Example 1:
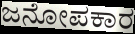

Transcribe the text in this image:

ಜನೋಪಕಾರ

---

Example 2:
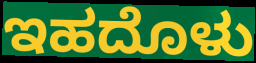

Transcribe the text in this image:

ಇಹದೊಳು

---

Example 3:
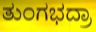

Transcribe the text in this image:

ತುಂಗಭದ್ರಾ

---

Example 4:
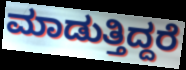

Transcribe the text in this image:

ಮಾಡುತ್ತಿದ್ದರೆ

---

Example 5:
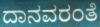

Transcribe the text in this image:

ದಾನವರಂತೆ